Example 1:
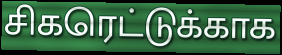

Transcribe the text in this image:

சிகரெட்டுக்காக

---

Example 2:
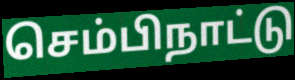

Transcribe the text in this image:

செம்பிநாட்டு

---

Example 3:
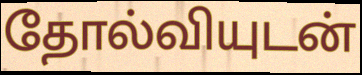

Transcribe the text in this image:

தோல்வியுடன்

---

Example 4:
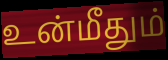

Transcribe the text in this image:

உன்மீதும்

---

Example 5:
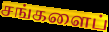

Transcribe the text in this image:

சங்களைப்